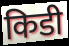
किडी